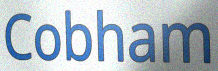
Cobham